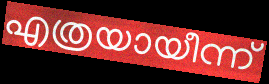
എത്രയായീന്ന്